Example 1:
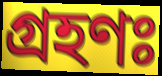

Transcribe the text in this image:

গ্রহণঃ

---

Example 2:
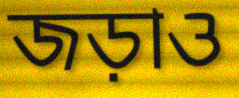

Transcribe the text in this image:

জড়াও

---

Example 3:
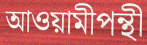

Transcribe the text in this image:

আওয়ামীপন্থী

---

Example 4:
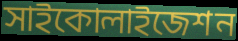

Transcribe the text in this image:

সাইকোলাইজেশন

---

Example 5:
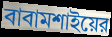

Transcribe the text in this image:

বাবামশাইয়ের